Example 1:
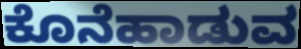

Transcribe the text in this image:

ಕೊನೆಹಾಡುವ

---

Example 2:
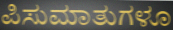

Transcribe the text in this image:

ಪಿಸುಮಾತುಗಳೂ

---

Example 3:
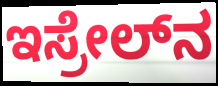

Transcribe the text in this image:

ಇಸ್ರೇಲ್‍ನ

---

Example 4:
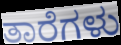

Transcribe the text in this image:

ತಾರೆಗಳು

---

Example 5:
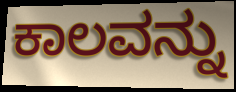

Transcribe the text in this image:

ಕಾಲವನ್ನು